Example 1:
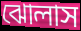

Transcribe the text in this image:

ঝোলাস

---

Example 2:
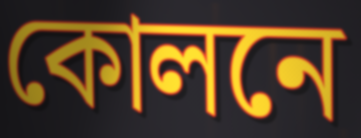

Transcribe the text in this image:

কোলনে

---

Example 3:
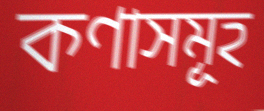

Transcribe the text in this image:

কণাসমূহ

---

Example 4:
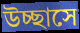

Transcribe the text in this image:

উচ্ছাসে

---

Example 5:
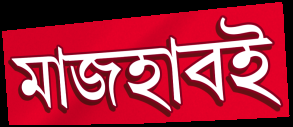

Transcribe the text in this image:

মাজহাবই